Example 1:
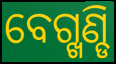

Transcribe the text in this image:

ବେଗ୍ଖଣ୍ଡି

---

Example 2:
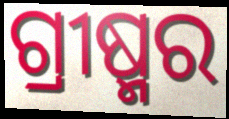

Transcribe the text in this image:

ଗ୍ରୀଷ୍ମର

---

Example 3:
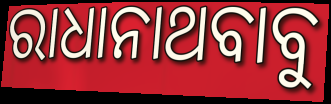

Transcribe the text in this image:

ରାଧାନାଥବାବୁ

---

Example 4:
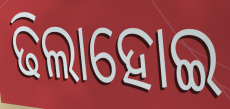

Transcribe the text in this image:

ଢିଲାହୋଇ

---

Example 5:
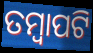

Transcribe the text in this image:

ତମ୍ବାପଟି